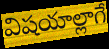
విషయాల్లాగే